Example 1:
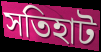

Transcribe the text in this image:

সতিহাট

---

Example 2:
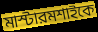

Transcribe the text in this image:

মাস্টারমশাইকে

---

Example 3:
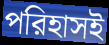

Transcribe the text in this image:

পরিহাসই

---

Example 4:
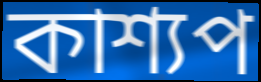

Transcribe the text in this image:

কাশ্যপ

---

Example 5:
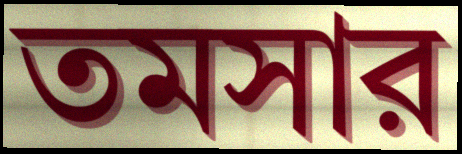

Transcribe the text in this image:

তমসার